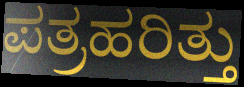
ಪತ್ರಹರಿತ್ತು